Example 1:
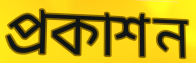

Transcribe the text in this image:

প্ৰকাশন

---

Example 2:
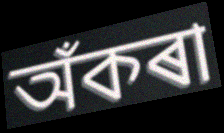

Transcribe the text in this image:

অঁকৰা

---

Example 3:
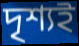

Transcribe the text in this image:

দৃশ্যই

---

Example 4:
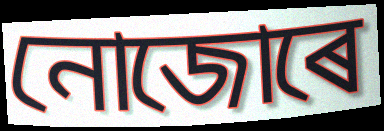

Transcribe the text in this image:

নোজোৰে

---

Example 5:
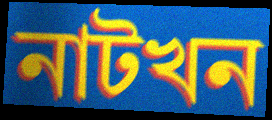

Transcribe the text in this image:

নাটখন